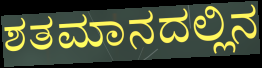
ಶತಮಾನದಲ್ಲಿನ